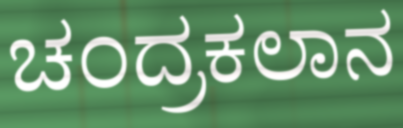
ಚಂದ್ರಕಲಾನ